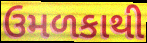
ઉમળકાથી